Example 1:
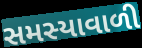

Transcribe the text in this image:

સમસ્યાવાળી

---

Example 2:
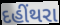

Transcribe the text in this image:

દહીંથરા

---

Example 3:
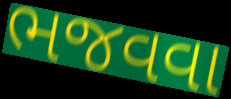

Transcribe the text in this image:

ભજવવા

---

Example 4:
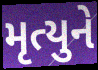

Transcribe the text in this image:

મૃત્યુને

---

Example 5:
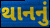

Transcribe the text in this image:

થાનનું